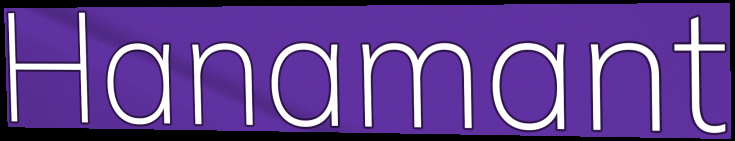
Hanamant